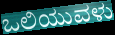
ಒಲಿಯುವಳು